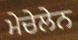
ਮੇਚੇਲੇਨ